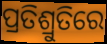
ପ୍ରତିଶ୍ରୁତିରେ